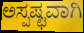
ಅಸ್ಪಷ್ಟವಾಗಿ